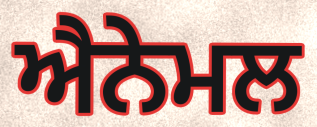
ਐਨੇਮਲ